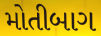
મોતીબાગ